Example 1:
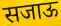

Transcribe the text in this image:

सजाऊ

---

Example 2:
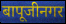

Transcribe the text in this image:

बापूजीनगर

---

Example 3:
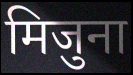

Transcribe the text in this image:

मिजुना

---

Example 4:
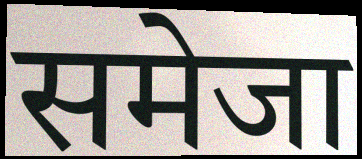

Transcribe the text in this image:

समेजा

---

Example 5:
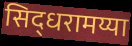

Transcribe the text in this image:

सिद्धरामय्या